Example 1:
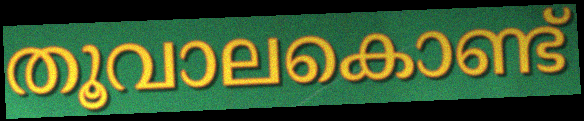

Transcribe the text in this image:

തൂവാലകൊണ്ട്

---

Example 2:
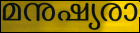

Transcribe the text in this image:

മനുഷ്യരാ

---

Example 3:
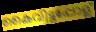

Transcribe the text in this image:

കൈവിട്ടപ്പോള്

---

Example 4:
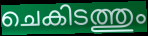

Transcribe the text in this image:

ചെകിടത്തും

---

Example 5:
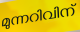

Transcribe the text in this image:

മുന്നറിവിന്